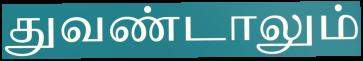
துவண்டாலும்